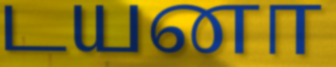
டயனா